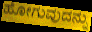
ಹೋಗುವುದನ್ನು